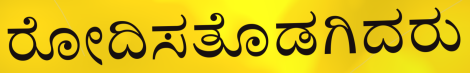
ರೋದಿಸತೊಡಗಿದರು